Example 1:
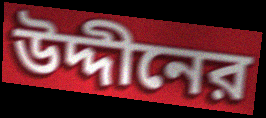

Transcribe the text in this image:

উদ্দীনের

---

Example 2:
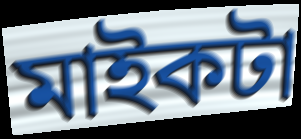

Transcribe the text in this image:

মাইকটা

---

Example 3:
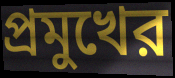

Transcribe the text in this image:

প্রমুখের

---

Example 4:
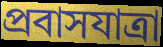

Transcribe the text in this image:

প্রবাসযাত্রা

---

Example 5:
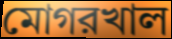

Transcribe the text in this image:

মোগরখাল